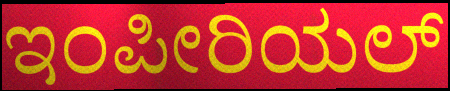
ಇಂಪೀರಿಯಲ್